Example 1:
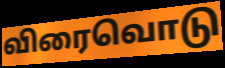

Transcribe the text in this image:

விரைவொடு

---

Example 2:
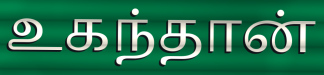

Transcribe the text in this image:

உகந்தான்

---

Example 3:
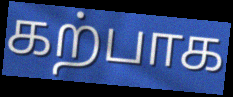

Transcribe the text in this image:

கற்பாக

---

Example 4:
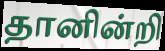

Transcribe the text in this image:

தானின்றி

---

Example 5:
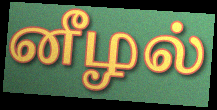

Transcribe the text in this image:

னீழல்